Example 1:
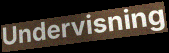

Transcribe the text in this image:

Undervisning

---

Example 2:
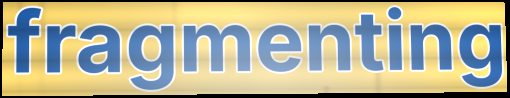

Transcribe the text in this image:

fragmenting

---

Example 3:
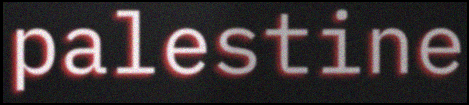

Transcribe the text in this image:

palestine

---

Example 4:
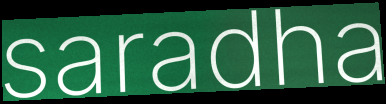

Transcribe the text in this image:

saradha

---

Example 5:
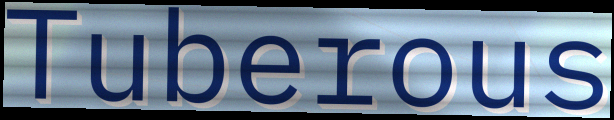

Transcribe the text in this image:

Tuberous